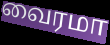
வைரமா